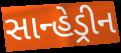
સાન્હેડ્રીન